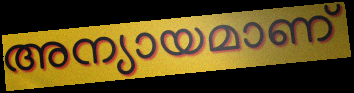
അന്യായമാണ്